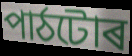
পাঠটোৰ